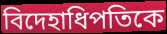
বিদেহাধিপতিকে